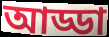
আড্ডা